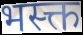
भस्क्त